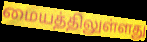
மையத்திலுள்ளது